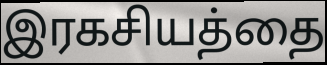
இரகசியத்தை